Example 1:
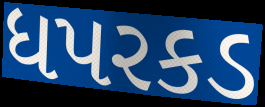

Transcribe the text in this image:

ધપરકડ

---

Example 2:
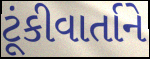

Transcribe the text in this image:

ટૂંકીવાર્તાને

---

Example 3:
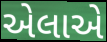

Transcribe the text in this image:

એલાએ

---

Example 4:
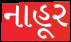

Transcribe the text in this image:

નાહૂર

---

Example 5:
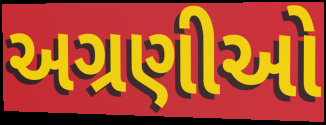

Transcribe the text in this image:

અગ્રણીઓ